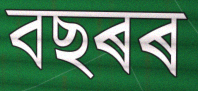
বছৰৰ